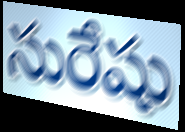
సురేషు